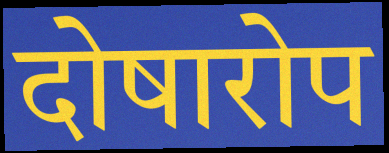
दोषारोप